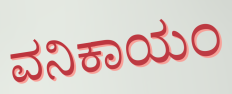
ವನಿಕಾಯಂ